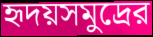
হৃদয়সমুদ্রের